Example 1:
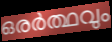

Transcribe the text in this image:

ഒരർത്ഥവും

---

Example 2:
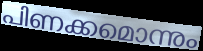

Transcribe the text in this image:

പിണക്കമൊന്നും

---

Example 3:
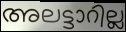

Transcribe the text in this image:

അലട്ടാറില്ല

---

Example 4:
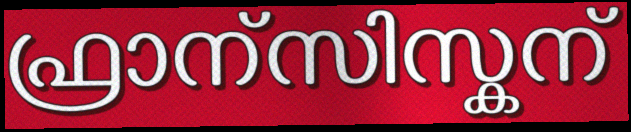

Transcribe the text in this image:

ഫ്രാന്സിസ്കന്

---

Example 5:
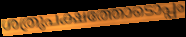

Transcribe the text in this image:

ശത്രുപക്ഷത്തോടൊപ്പം